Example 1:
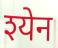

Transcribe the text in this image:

श्येन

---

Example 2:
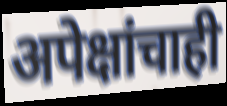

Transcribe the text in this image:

अपेक्षांचाही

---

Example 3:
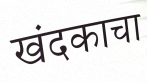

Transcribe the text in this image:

खंदकाचा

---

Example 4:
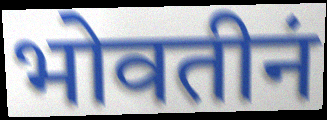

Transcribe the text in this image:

भोवतीनं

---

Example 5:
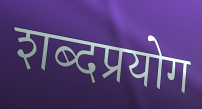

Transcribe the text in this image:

शब्दप्रयोग